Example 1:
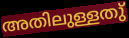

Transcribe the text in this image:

അതിലുള്ളതു്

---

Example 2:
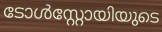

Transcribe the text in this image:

ടോൾസ്റ്റോയിയുടെ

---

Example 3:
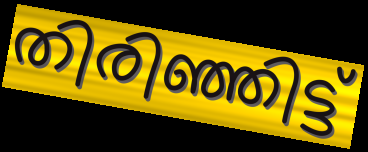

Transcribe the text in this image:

തിരിഞ്ഞിട്ട്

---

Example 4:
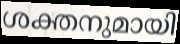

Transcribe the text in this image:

ശക്തനുമായി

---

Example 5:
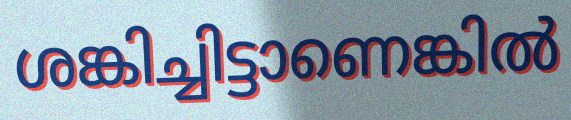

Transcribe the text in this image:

ശങ്കിച്ചിട്ടാണെങ്കിൽ